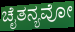
ಚೈತನ್ಯವೋ